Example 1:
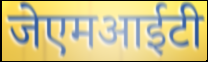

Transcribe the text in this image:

जेएमआईटी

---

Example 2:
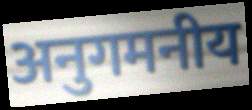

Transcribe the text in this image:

अनुगमनीय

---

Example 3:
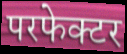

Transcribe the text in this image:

परफेक्टर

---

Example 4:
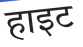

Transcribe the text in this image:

हाइट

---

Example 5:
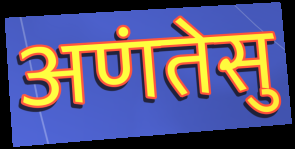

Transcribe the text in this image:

अणंतेसु